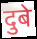
दुबे